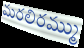
మరలిరమ్ము